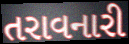
તરાવનારી